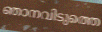
ഞാനവിടുത്തെ